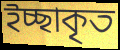
ইচ্ছাকৃত